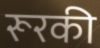
रूरकी